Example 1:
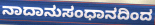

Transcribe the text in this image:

ನಾದಾನುಸಂಧಾನದಿಂದ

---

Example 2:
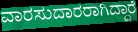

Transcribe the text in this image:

ವಾರಸುದಾರರಾಗಿದ್ದಾರೆ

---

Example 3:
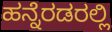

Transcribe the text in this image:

ಹನ್ನೆರಡರಲ್ಲಿ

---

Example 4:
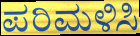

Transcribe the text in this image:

ಪರಿಮಳಿಸಿ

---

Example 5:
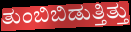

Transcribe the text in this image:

ತುಂಬಿಬಿಡುತ್ತಿತ್ತು